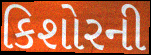
કિશોરની